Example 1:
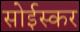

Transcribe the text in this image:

सोईस्कर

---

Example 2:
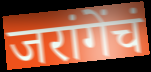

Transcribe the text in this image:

जरांगेंचं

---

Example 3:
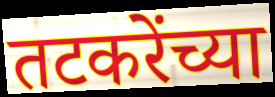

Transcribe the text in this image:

तटकरेंच्या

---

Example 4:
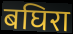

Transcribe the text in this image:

बघिरा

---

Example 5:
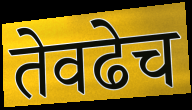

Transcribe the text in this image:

तेवढेच